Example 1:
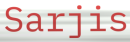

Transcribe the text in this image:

Sarjis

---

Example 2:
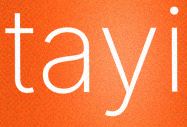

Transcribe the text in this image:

tayi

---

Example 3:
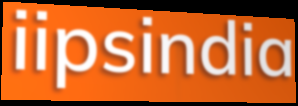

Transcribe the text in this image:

iipsindia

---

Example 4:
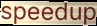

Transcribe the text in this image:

speedup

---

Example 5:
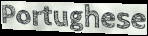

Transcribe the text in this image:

Portughese